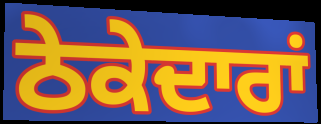
ਠੇਕੇਦਾਰਾਂ